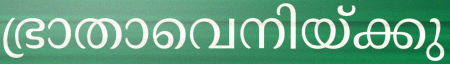
ഭ്രാതാവെനിയ്ക്കു